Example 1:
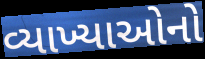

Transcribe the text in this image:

વ્યાખ્યાઓનો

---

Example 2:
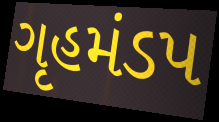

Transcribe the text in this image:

ગૃહમંડપ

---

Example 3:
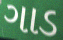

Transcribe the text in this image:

ગાડ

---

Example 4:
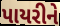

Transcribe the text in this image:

પાયરીને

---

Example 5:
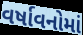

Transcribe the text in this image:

વર્ષાવનોમાં